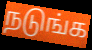
நடுங்க